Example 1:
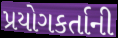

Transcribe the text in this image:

પ્રયોગકર્તાની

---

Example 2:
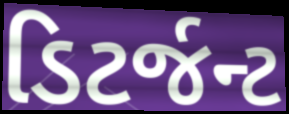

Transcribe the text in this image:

ડિટર્જન્ટ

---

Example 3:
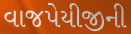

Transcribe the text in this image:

વાજપેયીજીની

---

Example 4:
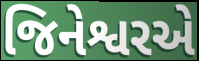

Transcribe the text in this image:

જિનેશ્વરએ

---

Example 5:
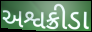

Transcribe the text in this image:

અશ્વક્રીડા